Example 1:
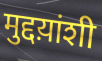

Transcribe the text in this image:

मुद्दय़ांशी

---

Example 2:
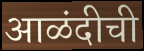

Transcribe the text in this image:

आळंदीची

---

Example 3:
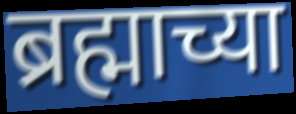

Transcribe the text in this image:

ब्रह्माच्या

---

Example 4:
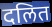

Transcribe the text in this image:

दलित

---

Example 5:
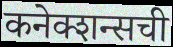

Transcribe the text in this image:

कनेक्शन्सची